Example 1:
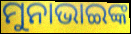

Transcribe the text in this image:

ମୁନାଭାଇଙ୍କ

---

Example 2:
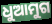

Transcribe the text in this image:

ଧୁଆମୁଗ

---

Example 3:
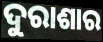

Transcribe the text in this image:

ଦୁରାଶାର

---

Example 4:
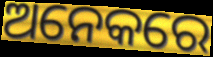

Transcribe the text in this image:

ଅନେକରେ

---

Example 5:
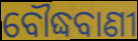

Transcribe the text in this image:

ବୌଦ୍ଧବାଣୀ